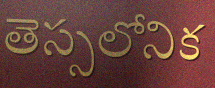
తెస్సలోనిక